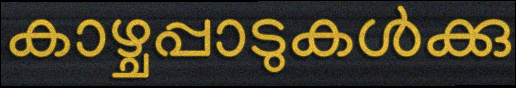
കാഴ്ചപ്പാടുകൾക്കു